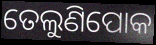
ତେଲୁଣିପୋକ